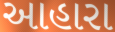
આહારા